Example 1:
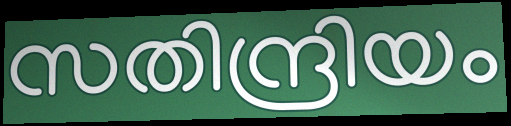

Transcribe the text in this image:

സതിന്ദ്രിയം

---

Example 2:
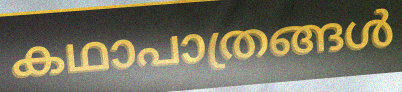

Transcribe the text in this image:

കഥാപാത്രങ്ങൾ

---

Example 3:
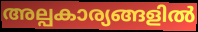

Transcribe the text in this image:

അല്പകാര്യങ്ങളിൽ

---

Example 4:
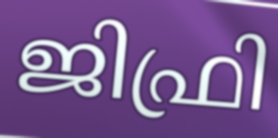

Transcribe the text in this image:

ജിഫ്രി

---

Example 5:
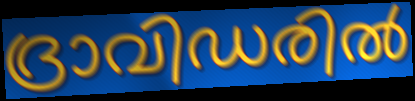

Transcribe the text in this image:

ദ്രാവിഡരിൽ